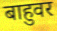
बाहुवर